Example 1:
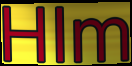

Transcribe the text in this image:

HIm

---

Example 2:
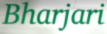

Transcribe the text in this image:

Bharjari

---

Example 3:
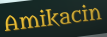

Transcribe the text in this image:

Amikacin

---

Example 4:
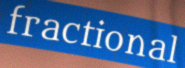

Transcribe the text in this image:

fractional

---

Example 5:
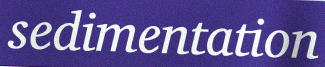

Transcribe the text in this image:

sedimentation